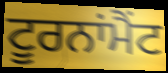
ਟੂਰਨਾਂਮੈਂਟ